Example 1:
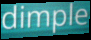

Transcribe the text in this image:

dimple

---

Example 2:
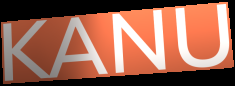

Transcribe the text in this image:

KANU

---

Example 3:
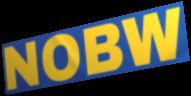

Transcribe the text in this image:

NOBW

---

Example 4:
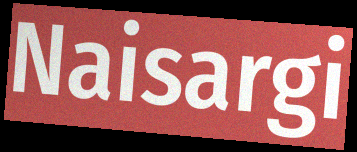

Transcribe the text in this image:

Naisargi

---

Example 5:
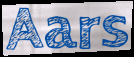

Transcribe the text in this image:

Aars